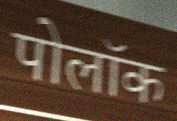
पोलॉक